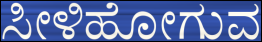
ಸೀಳಿಹೋಗುವ